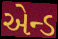
એન્ડ